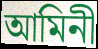
আমিনী